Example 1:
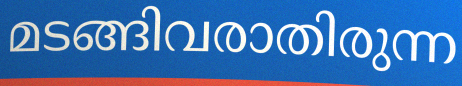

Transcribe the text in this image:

മടങ്ങിവരാതിരുന്ന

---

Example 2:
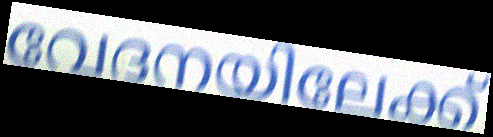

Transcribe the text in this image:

വേദനയിലേക്ക്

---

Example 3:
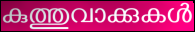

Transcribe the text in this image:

കുത്തുവാക്കുകൾ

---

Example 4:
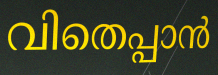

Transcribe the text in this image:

വിതെപ്പാൻ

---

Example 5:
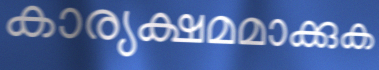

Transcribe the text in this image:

കാര്യക്ഷമമാക്കുക